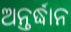
ଅନ୍ତର୍ଦ୍ଧାନ